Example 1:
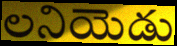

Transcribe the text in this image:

లనియెడు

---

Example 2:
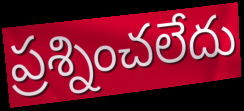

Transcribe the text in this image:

ప్రశ్నించలేదు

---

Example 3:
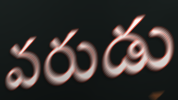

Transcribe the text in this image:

వరుడు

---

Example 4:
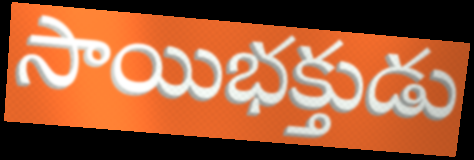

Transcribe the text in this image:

సాయిభక్తుడు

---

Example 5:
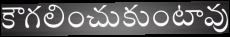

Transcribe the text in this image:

కౌగలించుకుంటావు